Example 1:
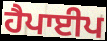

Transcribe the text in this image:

ਹੈਪਾਈਪ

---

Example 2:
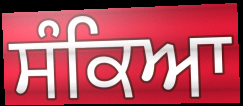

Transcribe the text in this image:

ਸੰਕਿਆ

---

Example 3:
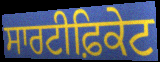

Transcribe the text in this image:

ਸਾਰਟੀਫ਼ਿਕੇਟ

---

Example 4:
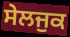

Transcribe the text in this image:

ਸੇਲਜੁਕ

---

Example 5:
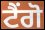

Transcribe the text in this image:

ਟੈਂਗੋ